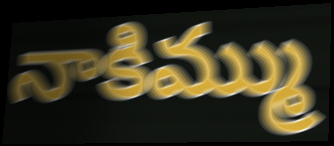
నాకిమ్ము